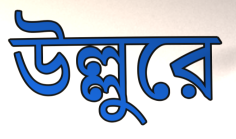
উল্লুরে